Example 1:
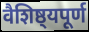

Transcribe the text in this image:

वैशिष्ठ्यपूर्ण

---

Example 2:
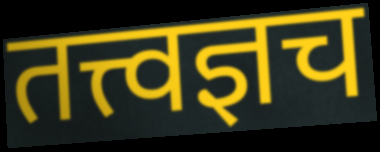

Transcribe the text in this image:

तत्त्वज्ञच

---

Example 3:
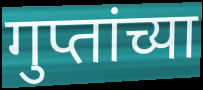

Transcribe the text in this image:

गुप्तांच्या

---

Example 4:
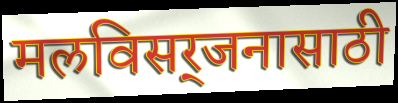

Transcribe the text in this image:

मलविसर्जनासाठी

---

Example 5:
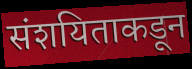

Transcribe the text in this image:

संशयिताकडून